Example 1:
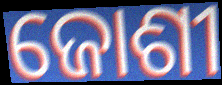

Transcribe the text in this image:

ଜୋଶୀ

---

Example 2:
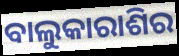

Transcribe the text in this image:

ବାଲୁକାରାଶିର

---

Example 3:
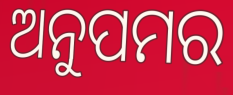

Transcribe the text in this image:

ଅନୁପମର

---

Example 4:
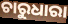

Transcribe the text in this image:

ଚାରୁଧାରା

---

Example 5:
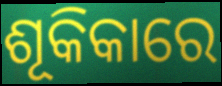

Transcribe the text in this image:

ଶୂକିକାରେ